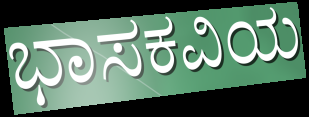
ಭಾಸಕವಿಯ